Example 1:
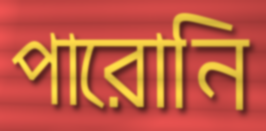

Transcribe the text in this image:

পারোনি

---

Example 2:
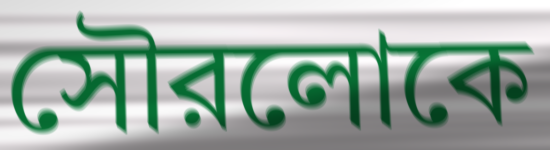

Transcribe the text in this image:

সৌরলোকে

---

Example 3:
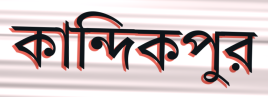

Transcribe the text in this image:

কান্দিকপুর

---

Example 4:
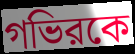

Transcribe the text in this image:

গভিরকে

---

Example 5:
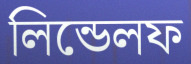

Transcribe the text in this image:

লিন্ডেলফ